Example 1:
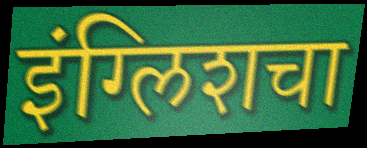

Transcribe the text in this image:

इंग्लिशचा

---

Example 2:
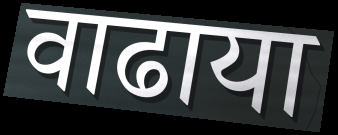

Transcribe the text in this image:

वाढाया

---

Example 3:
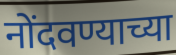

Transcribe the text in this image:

नोंदवण्याच्या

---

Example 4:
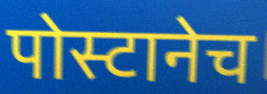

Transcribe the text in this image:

पोस्टानेच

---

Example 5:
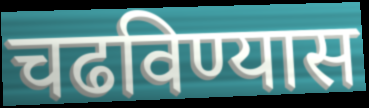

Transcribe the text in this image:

चढविण्यास